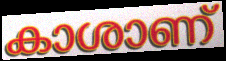
കാശാണ്